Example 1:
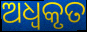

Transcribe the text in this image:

ଅଧ୍ବକୃତ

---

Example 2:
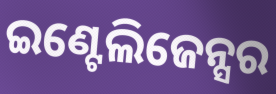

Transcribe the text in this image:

ଇଣ୍ଟେଲିଜେନ୍ସର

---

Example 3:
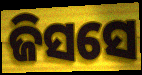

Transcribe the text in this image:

ଜିସସେ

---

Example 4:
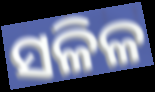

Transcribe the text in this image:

ସଳିଳ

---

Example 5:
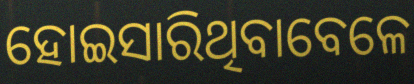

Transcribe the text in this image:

ହୋଇସାରିଥିବାବେଳେ